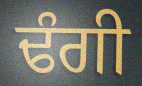
ਢੰਗੀ